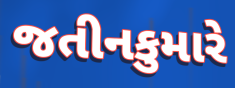
જતીનકુમારે